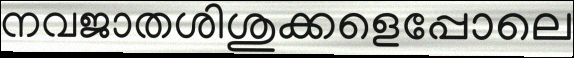
നവജാതശിശുക്കളെപ്പോലെ